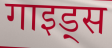
गाइड्स